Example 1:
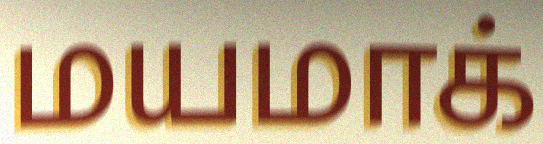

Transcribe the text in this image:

மயமாக்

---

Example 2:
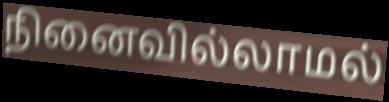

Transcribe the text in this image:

நினைவில்லாமல்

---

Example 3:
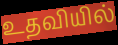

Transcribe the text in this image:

உதவியில்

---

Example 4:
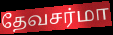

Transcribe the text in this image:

தேவசர்மா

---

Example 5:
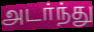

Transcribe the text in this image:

அடர்ந்து